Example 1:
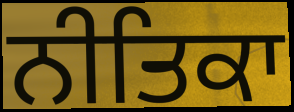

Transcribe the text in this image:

ਨੀਤਿਕਾ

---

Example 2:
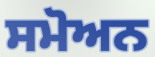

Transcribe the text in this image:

ਸਮੋਅਨ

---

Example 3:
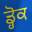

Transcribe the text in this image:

ਡ੍ਹੋਕ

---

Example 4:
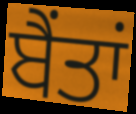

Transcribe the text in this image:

ਬੈਂਤਾਂ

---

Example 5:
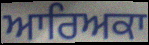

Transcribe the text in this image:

ਆਰਿਅਕਾ